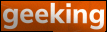
geeking